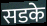
सडके